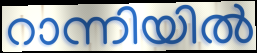
റാന്നിയിൽ